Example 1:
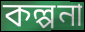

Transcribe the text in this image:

কল্পনা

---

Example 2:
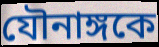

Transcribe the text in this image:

যৌনাঙ্গকে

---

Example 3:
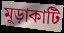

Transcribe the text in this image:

মুড়াকাটি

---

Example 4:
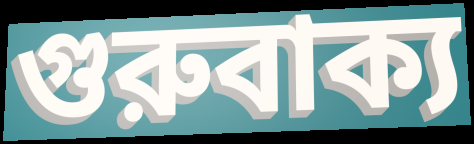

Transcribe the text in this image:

গুরুবাক্য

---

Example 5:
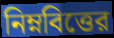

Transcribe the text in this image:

নিম্নবিত্তের